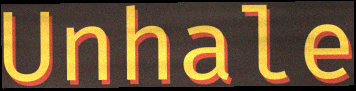
Unhale